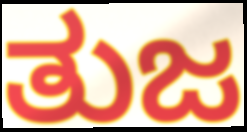
ತುಜ